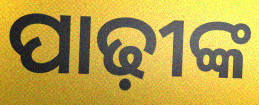
ପାଢ଼ୀଙ୍କ